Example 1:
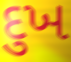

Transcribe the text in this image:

દુખ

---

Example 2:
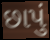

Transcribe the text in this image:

છાપું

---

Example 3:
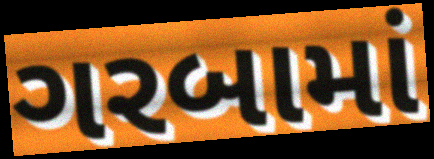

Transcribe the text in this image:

ગરબામાં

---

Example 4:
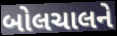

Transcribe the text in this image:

બોલચાલને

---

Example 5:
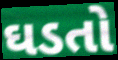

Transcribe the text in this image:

ઘડતો